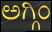
ಅಗ್ಗಿಂ